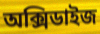
অক্সিডাইজ